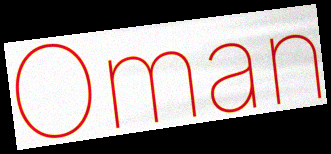
Oman